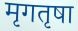
मृगतृषा